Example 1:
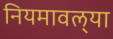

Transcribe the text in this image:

नियमावल्या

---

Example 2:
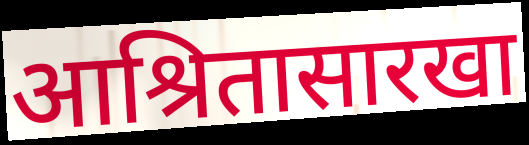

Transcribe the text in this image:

आश्रितासारखा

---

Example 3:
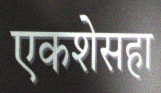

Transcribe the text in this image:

एकशेसहा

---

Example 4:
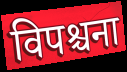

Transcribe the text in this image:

विपश्चना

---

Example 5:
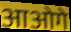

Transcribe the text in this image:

आओगे